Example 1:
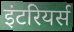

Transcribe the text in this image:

इंटरियर्स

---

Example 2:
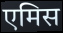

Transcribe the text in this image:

एमिस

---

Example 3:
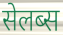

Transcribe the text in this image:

सेलब्स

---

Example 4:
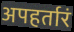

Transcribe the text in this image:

अपहर्तारं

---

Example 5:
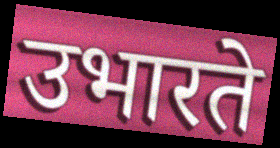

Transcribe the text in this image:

उभारते